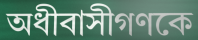
অধীবাসীগণকে